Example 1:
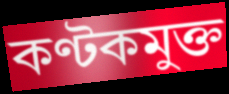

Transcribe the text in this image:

কণ্টকমুক্ত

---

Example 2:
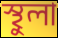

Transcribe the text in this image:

স্থুলা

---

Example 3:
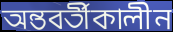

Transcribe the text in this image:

অন্তবর্তীকালীন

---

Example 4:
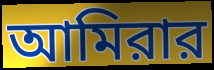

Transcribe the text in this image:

আমিরার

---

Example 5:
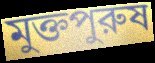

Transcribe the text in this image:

মুক্তপুরুষ